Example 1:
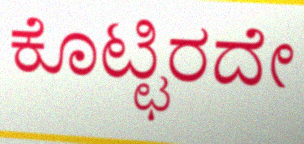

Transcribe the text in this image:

ಕೊಟ್ಟಿರದೇ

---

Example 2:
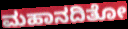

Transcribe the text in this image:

ಮಹಾನದಿತೋ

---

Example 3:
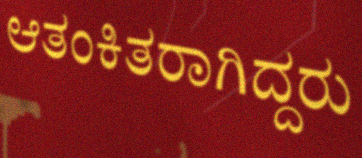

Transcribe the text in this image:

ಆತಂಕಿತರಾಗಿದ್ದರು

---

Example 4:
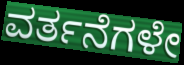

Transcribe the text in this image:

ವರ್ತನೆಗಳೇ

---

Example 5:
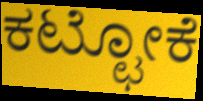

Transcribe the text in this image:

ಕಟ್ಟೋಕೆ